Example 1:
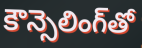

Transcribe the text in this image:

కౌన్సెలింగ్‌తో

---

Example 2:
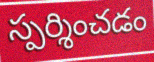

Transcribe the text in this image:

స్పర్శించడం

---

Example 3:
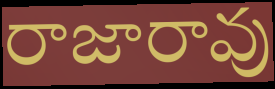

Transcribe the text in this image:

రాజారావు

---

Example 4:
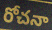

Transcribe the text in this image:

రోచనా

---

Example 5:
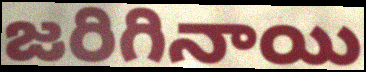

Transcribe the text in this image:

జరిగినాయి